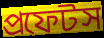
প্রফেটস